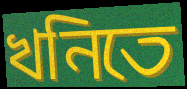
খনিতে